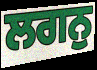
ਲਗਨੁ